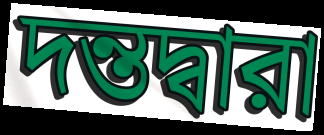
দন্তদ্বারা